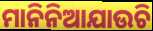
ମାନିନିଆଯାଉଚି